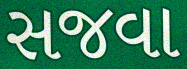
સજવા